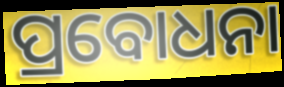
ପ୍ରବୋଧନା